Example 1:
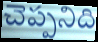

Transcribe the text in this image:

చెప్పనిది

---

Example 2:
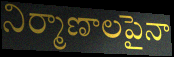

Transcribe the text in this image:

నిర్మాణాలపైనా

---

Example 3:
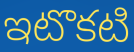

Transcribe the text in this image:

ఇటొకటి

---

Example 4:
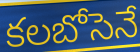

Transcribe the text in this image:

కలబోసెనే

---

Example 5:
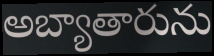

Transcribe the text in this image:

అబ్యాతారును